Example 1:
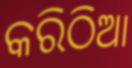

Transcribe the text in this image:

କରିଠିଆ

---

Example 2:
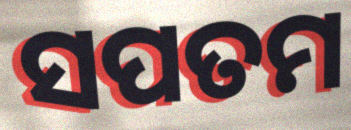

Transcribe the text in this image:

ସପତମ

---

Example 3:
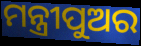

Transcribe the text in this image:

ମନ୍ତ୍ରୀପୁଅର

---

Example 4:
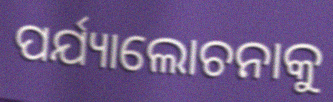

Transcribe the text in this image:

ପର୍ଯ୍ୟାଲୋଚନାକୁ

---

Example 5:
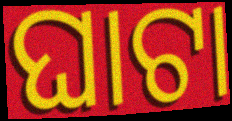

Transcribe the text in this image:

ଘାଟା